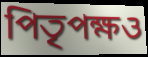
পিতৃপক্ষও